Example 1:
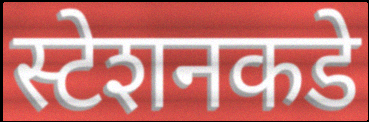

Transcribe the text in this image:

स्टेशनकडे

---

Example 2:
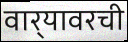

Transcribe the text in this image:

वार्‍यावरची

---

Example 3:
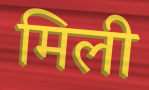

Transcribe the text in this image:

मिली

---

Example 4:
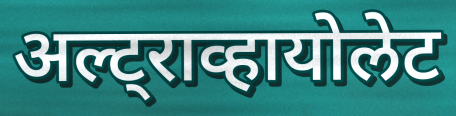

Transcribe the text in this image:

अल्ट्राव्हायोलेट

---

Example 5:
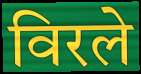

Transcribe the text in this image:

विरले